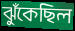
ঝুঁকেছিল